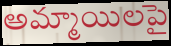
అమ్మాయిలపై